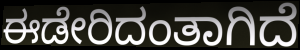
ಈಡೇರಿದಂತಾಗಿದೆ